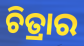
ଚିତ୍ରାର